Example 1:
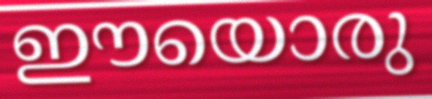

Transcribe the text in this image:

ഈയൊരു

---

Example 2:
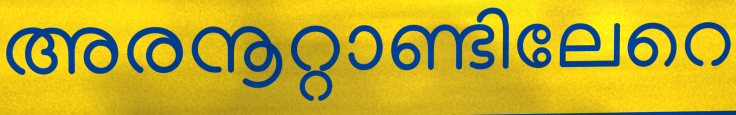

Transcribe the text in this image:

അരനൂറ്റാണ്ടിലേറെ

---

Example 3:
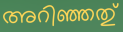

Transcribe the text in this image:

അറിഞ്ഞതു്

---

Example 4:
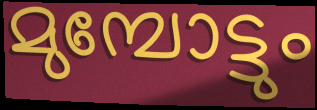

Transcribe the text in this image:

മുമ്പോട്ടും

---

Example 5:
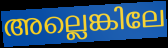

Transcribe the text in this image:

അല്ലെങ്കിലേ